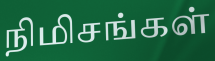
நிமிசங்கள்